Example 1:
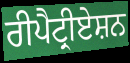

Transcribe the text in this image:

ਰੀਪੈਟ੍ਰੀਏਸ਼ਨ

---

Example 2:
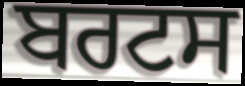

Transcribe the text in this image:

ਬਰਟਸ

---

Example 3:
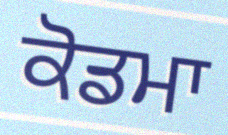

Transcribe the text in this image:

ਕੋਡਮਾ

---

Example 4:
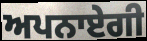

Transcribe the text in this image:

ਅਪਨਾਏਗੀ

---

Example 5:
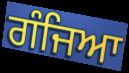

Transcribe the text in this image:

ਗੰਜਿਆ